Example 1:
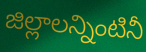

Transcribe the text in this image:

జిల్లాలన్నింటినీ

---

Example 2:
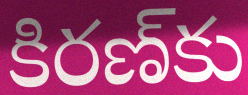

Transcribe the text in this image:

కిరణ్‌కు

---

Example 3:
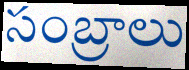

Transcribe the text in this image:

సంబ్రాలు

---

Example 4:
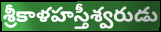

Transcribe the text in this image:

శ్రీకాళహస్తీశ్వరుడు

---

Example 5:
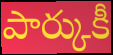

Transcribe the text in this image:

పార్కుకీ